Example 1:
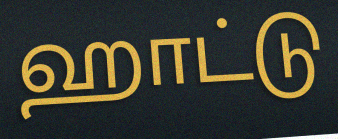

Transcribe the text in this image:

ஹாட்டு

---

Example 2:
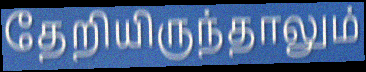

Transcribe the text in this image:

தேறியிருந்தாலும்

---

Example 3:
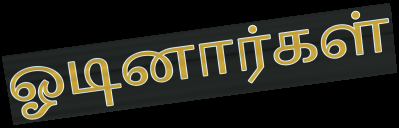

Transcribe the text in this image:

ஓடினார்கள்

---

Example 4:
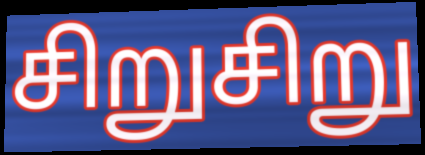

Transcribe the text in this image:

சிறுசிறு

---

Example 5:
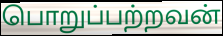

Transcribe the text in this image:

பொறுப்பற்றவன்